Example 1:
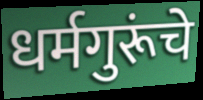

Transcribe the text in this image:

धर्मगुरूंचे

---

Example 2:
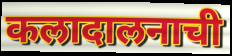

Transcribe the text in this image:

कलादालनाची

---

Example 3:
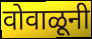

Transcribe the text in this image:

वोवाळूनी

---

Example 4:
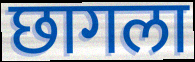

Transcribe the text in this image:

छागला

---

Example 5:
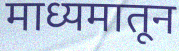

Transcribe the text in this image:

माध्यमातून